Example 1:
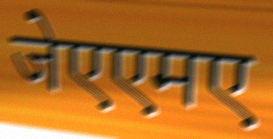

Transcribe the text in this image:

जेएएमए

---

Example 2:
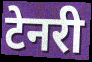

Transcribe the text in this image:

टेनरी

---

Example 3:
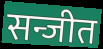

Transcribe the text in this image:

सन्जीत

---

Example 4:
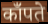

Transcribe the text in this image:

काँपते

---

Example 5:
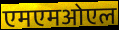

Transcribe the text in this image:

एमएमओएल